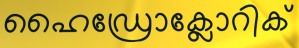
ഹൈഡ്രോക്ലോറിക്